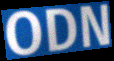
ODN